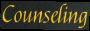
Counseling